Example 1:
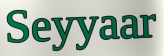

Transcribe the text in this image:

Seyyaar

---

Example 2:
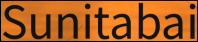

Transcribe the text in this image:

Sunitabai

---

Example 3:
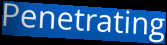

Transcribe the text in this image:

Penetrating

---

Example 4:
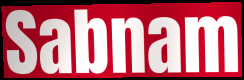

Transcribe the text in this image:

Sabnam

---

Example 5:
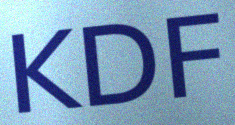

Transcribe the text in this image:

KDF